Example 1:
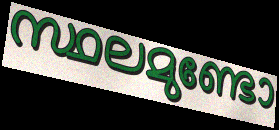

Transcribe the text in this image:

സ്ഥലമുണ്ടോ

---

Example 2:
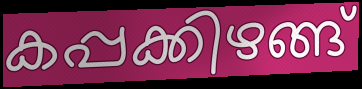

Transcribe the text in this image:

കപ്പക്കിഴങ്ങ്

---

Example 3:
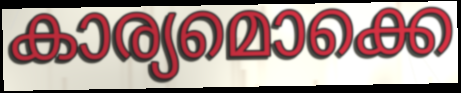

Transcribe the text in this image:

കാര്യമൊക്കെ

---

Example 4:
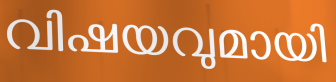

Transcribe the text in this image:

വിഷയവുമായി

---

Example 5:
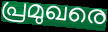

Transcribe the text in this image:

പ്രമുഖരെ